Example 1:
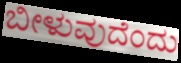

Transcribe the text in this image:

ಬೀಳುವುದೆಂದು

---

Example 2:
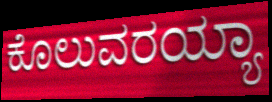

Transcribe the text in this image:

ಕೊಲುವರಯ್ಯಾ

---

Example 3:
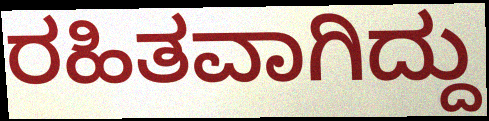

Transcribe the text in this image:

ರಹಿತವಾಗಿದ್ದು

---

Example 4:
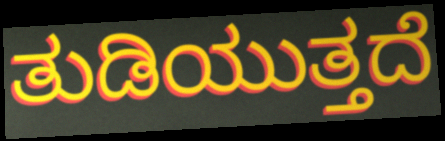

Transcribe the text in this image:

ತುಡಿಯುತ್ತದೆ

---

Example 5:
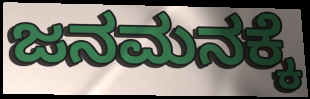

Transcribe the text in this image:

ಜನಮನಕ್ಕೆ